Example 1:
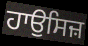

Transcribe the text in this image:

ਹਾਉਸਿਜ਼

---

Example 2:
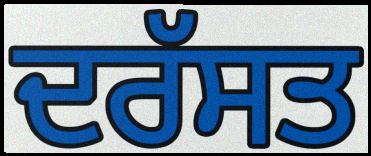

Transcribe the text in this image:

ਦਰੱਸਤ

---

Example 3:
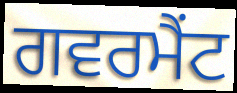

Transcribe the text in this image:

ਗਵਰਮੈਂਟ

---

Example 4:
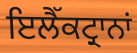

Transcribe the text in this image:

ਇਲੈੱਕਟ੍ਰਾਨਾਂ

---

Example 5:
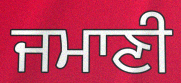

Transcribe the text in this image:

ਜਮਾਣੀ